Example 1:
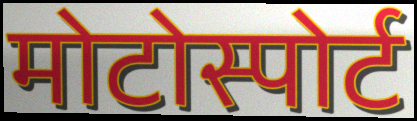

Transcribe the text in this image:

मोटोस्पोर्ट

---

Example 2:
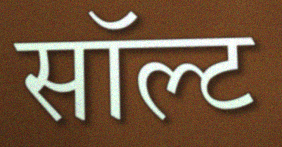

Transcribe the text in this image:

सॉल्ट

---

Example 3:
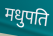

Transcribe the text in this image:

मधुपति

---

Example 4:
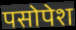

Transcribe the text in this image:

पसोपेश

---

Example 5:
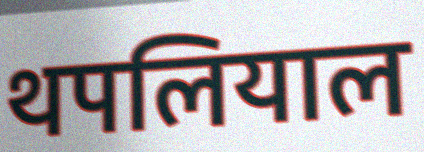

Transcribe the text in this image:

थपलियाल